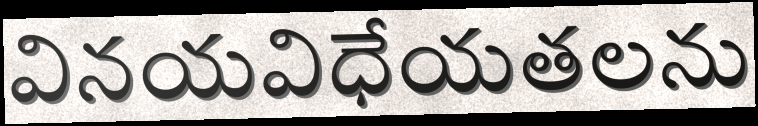
వినయవిధేయతలను